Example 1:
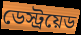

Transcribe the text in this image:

ডেস্ট্রয়েড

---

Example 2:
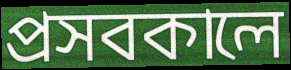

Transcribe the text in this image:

প্রসবকালে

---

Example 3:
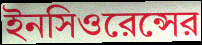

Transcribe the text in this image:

ইনসিওরেন্সের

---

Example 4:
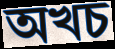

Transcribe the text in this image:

অখচ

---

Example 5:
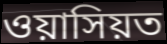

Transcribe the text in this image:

ওয়াসিয়ত